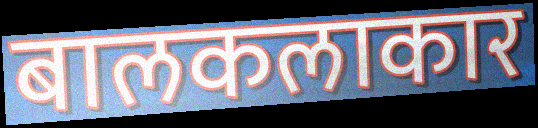
बालकलाकार